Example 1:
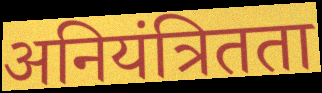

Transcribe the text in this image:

अनियंत्रितता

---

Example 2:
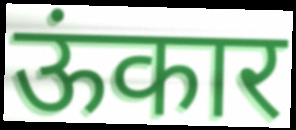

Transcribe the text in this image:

ऊंकार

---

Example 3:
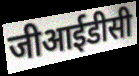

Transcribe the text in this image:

जीआईडीसी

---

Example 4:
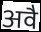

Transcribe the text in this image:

अवै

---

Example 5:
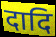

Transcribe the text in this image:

दादि